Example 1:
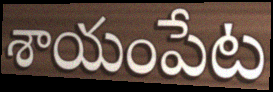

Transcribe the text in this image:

శాయంపేట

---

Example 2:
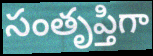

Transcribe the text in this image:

సంతృప్తిగా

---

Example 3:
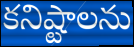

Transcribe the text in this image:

కనిష్టాలను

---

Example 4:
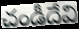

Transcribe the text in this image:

చండీదేవి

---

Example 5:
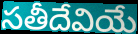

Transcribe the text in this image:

సతీదేవియే